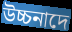
উচ্চনাদে